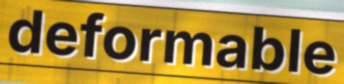
deformable